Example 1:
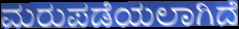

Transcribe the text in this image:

ಮರುಪಡೆಯಲಾಗಿದೆ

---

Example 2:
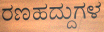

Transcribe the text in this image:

ರಣಹದ್ದುಗಳ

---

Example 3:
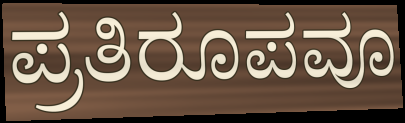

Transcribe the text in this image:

ಪ್ರತಿರೂಪವೂ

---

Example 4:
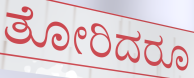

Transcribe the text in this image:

ತೋರಿದರೂ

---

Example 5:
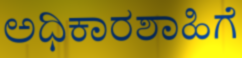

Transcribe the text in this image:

ಅಧಿಕಾರಶಾಹಿಗೆ